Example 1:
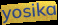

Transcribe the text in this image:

yosika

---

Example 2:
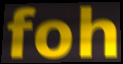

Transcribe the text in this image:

foh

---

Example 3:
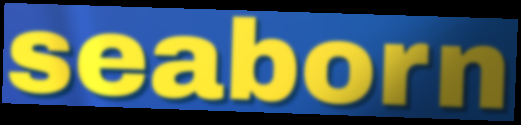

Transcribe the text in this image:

seaborn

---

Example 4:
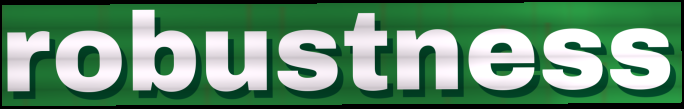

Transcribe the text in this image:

robustness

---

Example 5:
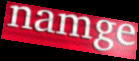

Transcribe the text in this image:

namge